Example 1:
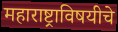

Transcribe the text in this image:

महाराष्ट्राविषयीचे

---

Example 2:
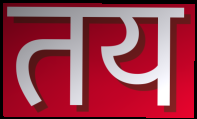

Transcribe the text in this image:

तय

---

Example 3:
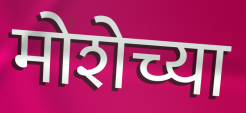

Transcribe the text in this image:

मोशेच्या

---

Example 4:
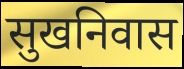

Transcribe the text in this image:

सुखनिवास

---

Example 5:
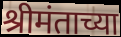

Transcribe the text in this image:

श्रीमंताच्या